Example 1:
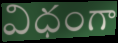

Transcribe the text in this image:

విధంగా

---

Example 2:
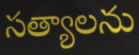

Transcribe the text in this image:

సత్యాలను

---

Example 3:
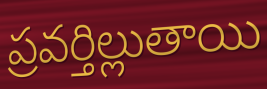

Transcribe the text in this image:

ప్రవర్తిల్లుతాయి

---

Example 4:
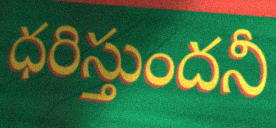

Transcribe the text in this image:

ధరిస్తుందనీ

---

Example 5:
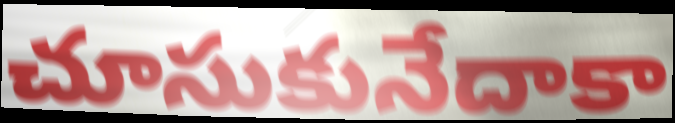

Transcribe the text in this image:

చూసుకునేదాకా